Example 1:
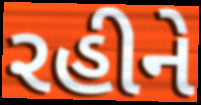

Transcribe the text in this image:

રહીને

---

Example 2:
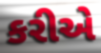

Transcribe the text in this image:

કરીએ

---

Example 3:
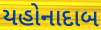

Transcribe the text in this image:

યહોનાદાબ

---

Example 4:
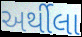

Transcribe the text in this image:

અર્થીલા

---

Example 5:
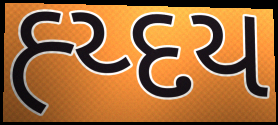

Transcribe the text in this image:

હ્ય્દય